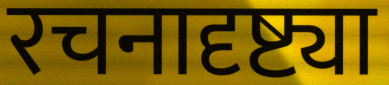
रचनादृष्ट्या